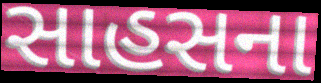
સાહસના